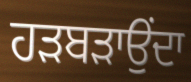
ਹੜਬੜਾਉਂਦਾ